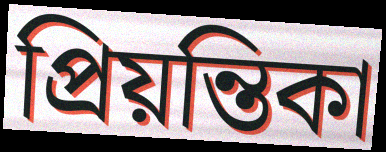
প্রিয়ন্তিকা